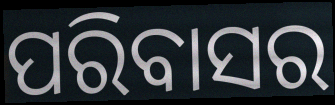
ପରିବାସର